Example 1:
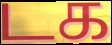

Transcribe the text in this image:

டக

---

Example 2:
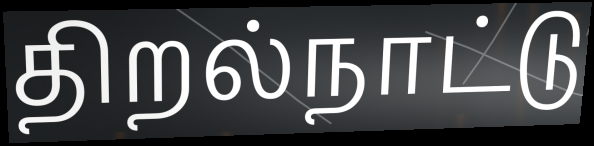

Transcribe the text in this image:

திறல்நாட்டு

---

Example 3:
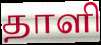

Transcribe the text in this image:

தாளி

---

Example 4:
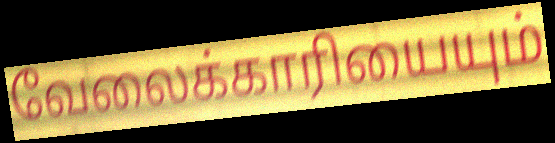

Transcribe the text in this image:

வேலைக்காரியையும்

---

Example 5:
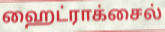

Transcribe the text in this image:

ஹைட்ராக்சைல்